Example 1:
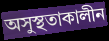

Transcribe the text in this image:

অসুস্থতাকালীন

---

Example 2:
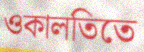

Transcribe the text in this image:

ওকালতিতে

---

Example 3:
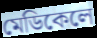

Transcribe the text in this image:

মেডিকেলে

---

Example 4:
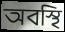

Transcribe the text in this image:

অবস্থি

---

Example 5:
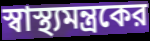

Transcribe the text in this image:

স্বাস্থ্যমন্ত্রকের